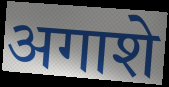
अगाशे